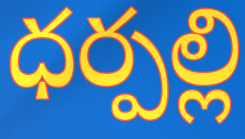
ధర్పల్లి